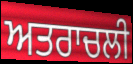
ਅਤਰਾਚਲੀ